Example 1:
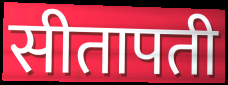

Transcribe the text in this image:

सीतापती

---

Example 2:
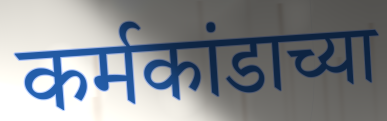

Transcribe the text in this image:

कर्मकांडाच्या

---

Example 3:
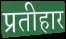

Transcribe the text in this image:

प्रतीहार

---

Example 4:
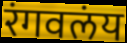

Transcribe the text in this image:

रंगवलंय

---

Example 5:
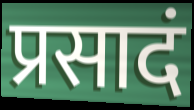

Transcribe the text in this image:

प्रसादं